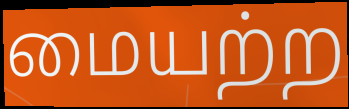
மையற்ற